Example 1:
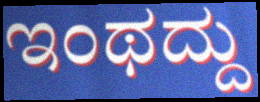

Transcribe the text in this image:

ಇಂಥದ್ದು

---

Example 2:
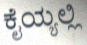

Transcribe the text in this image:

ಕೈಯ್ಯಲ್ಲಿ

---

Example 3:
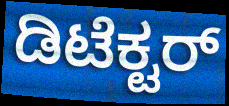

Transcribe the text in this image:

ಡಿಟೆಕ್ಟರ್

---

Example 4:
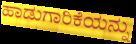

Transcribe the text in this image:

ಹಾಡುಗಾರಿಕೆಯನ್ನು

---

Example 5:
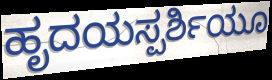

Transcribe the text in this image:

ಹೃದಯಸ್ಪರ್ಶಿಯೂ